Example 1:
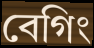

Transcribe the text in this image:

বেগিং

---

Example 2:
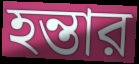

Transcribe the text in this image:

হন্তার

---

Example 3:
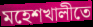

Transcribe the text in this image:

মহেশখালীতে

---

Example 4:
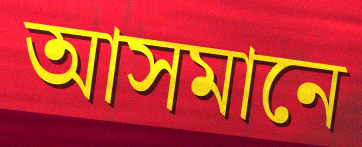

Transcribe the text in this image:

আসমানে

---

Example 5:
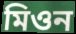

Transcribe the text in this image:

মিওন